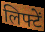
लिफ्टें